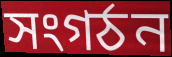
সংগঠন